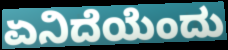
ಏನಿದೆಯೆಂದು